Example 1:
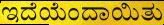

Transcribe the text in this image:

ಇದೆಯೆಂದಾಯಿತು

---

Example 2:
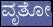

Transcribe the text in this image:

ವೃತೋ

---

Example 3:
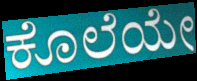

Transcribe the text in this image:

ಕೊಲೆಯೇ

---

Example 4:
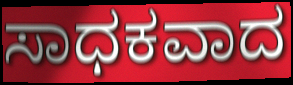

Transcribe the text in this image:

ಸಾಧಕವಾದ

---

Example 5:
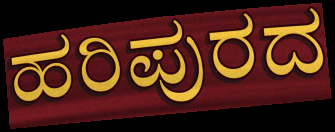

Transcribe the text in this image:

ಹರಿಪುರದ